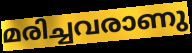
മരിച്ചവരാണു